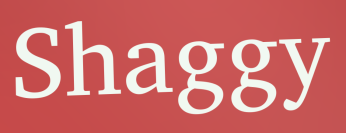
Shaggy